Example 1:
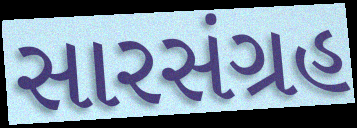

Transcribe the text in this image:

સારસંગ્રહ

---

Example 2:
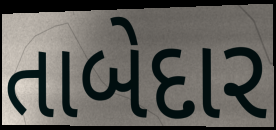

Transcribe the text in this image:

તાબેદાર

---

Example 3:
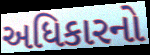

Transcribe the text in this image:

અધિકારનો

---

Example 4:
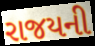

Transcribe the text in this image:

રાજયની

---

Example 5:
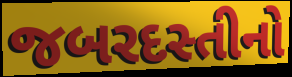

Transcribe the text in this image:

જબરદસ્તીનો